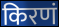
किरणं